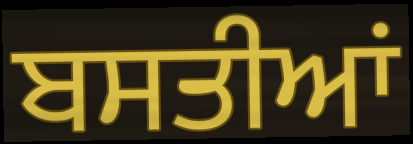
ਬਸਤੀਆਂ